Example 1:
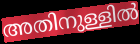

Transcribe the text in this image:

അതിനുള്ളിൽ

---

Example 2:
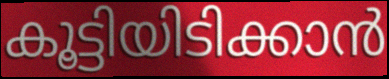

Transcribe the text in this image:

കൂട്ടിയിടിക്കാൻ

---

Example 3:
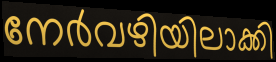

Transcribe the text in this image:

നേർവഴിയിലാക്കി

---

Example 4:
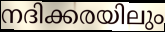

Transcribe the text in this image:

നദിക്കരയിലും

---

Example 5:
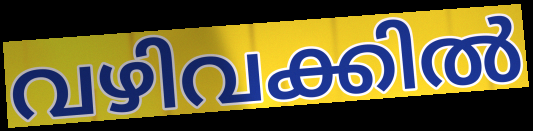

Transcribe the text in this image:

വഴിവക്കിൽ